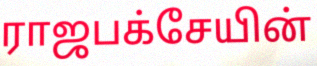
ராஜபக்சேயின்